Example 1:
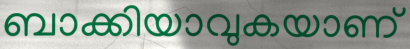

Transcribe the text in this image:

ബാക്കിയാവുകയാണ്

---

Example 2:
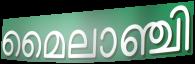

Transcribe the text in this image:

മൈലാഞ്ചി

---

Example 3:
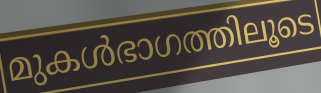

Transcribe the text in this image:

മുകൾഭാഗത്തിലൂടെ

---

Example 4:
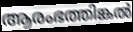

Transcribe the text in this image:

ആരംഭത്തിങ്കൽ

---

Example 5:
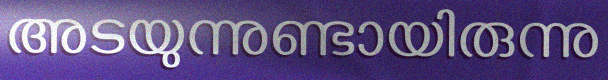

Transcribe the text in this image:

അടയുന്നുണ്ടായിരുന്നു